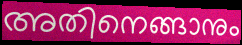
അതിനെങ്ങാനും